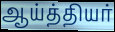
ஆய்த்தியர்